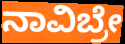
ನಾವಿಬ್ರೇ